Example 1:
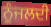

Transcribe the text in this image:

ਨੂੰਜਲਦੀ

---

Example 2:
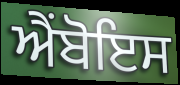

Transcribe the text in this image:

ਐਂਬੋਇਸ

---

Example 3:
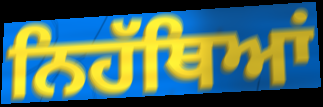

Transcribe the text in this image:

ਨਿਹੱਥਿਆਂ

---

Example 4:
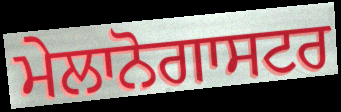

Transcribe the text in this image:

ਮੇਲਾਨੋਗਾਸਟਰ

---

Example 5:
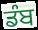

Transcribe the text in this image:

ਡੰਬ